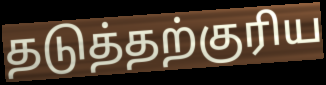
தடுத்தற்குரிய